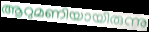
ആറുമണിയായിരുന്നു